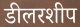
डीलरशीप